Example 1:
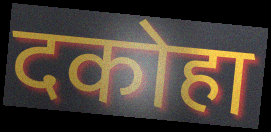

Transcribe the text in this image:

दकोहा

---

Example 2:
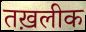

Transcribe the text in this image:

तख़लीक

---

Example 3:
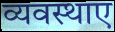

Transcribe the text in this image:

व्यवस्थाए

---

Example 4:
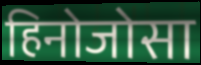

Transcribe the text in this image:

हिनोजोसा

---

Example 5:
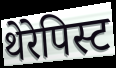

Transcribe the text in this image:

थेरेपिस्ट